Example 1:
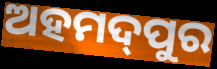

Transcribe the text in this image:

ଅହମଦ୍‌ପୁର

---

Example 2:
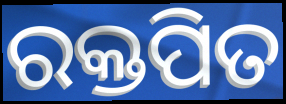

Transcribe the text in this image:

ରକ୍ତପିତ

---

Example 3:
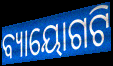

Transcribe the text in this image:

ବ୍ୟାୟୋଗଟି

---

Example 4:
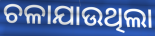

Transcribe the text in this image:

ଚଳାଯାଉଥିଲା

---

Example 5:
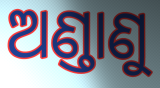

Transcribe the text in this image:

ଅଣ୍ଡାଣୁ